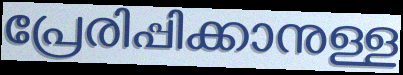
പ്രേരിപ്പിക്കാനുള്ള